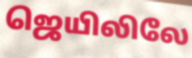
ஜெயிலிலே